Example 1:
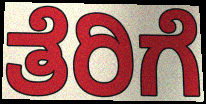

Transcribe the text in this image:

ತೆರಿಗೆ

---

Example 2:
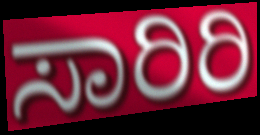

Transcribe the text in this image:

ಸಾರಿರಿ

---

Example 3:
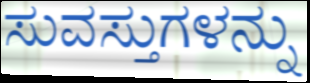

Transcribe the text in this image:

ಸುವಸ್ತುಗಳನ್ನು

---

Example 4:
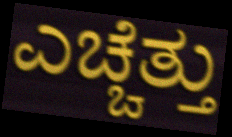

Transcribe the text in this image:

ಎಚ್ಚೆತ್ತು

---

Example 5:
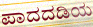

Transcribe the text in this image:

ಪಾದದಡಿಯ